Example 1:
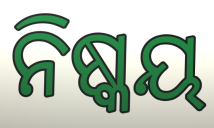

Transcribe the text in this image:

ନିଷ୍କୟ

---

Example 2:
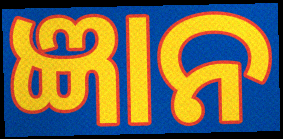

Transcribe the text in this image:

ଜ୍ଞାନ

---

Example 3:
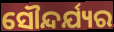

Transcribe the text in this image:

ସୌନ୍ଦର୍ଯ୍ୟର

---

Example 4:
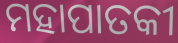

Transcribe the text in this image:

ମହାପାତକୀ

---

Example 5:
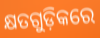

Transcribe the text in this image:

କ୍ଷତଗୁଡ଼ିକରେ